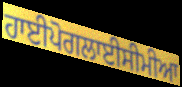
ਹਾਈਪੋਗਲਾਈਸੀਮੀਆ